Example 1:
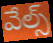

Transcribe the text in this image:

వేల్స్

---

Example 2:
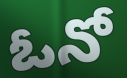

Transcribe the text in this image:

ఓనో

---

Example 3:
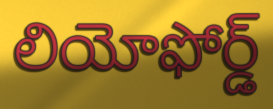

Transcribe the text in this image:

లియోఫోర్డ్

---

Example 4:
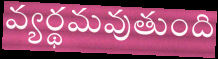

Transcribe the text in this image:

వ్యర్థమవుతుంది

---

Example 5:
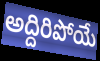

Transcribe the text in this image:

అద్దిరిపోయే